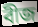
বীজ